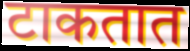
टाकतात